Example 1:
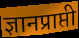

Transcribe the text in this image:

ज्ञानप्राप्ती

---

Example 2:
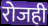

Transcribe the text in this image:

रोजही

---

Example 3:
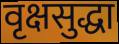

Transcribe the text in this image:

वृक्षसुद्धा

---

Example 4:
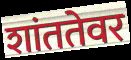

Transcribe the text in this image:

शांततेवर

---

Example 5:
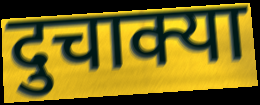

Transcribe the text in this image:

दुचाक्या